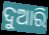
ଦୁଆରି